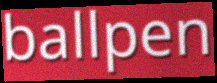
ballpen